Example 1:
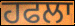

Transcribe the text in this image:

ਹਫਲਾ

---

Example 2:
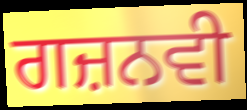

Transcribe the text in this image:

ਗਜ਼ਨਵੀ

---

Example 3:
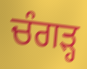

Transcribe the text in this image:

ਚੰਗੜ੍ਹ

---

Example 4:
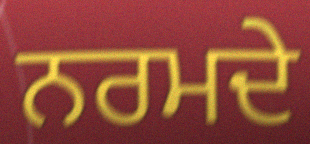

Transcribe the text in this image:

ਨਰਮਦੇ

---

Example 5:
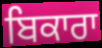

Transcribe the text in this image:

ਬਿਕਾਰਾ